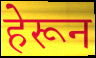
हेरून